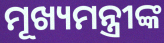
ମୂଖ୍ୟମନ୍ତ୍ରୀଙ୍କ